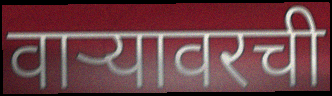
वार्‍यावरची